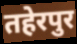
तहेरपुर